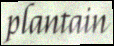
plantain